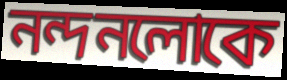
নন্দনলোকে